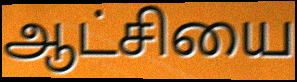
ஆட்சியை